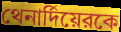
থেনার্দিয়েরকে